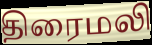
திரைமலி